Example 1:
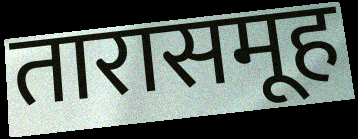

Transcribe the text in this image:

तारासमूह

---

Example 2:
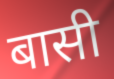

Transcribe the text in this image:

बासी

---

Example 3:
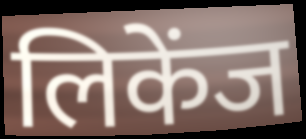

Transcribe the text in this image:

लिकेंज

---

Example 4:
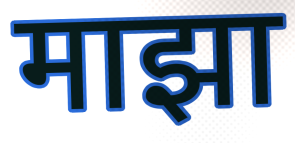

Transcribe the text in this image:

माझा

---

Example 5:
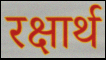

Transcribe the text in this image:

रक्षार्थ